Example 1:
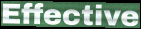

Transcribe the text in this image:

Effective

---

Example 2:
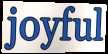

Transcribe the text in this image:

joyful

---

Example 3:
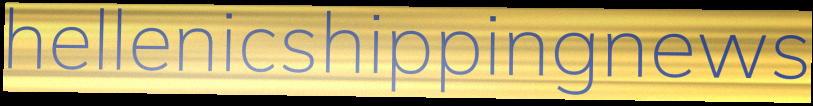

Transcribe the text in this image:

hellenicshippingnews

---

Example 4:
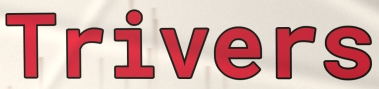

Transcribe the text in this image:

Trivers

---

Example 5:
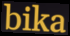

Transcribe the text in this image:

bika